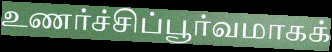
உணர்ச்சிப்பூர்வமாகக்